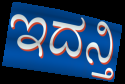
ಇದನ್ತಿ